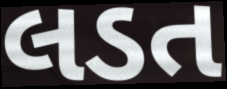
લડત